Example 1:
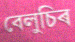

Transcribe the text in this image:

বেলুচিৰ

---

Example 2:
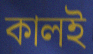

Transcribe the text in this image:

কালই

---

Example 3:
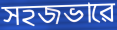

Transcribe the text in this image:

সহজভাৱে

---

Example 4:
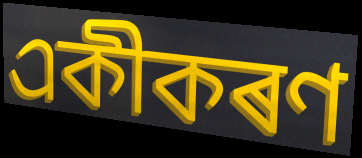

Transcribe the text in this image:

একীকৰণ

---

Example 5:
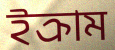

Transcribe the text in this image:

ইক্ৰাম